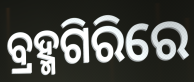
ବ୍ରହ୍ମଗିରିରେ